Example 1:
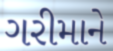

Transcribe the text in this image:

ગરીમાને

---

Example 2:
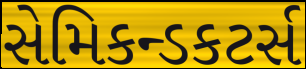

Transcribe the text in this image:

સેમિકન્ડકટર્સ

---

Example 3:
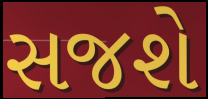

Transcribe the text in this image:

સજશે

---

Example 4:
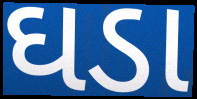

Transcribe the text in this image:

ઘડા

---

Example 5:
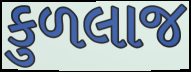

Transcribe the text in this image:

કુળલાજ